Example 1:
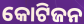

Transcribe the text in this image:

କୋଟିଜନ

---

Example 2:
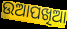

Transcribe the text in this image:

ଉଆପଖିଆ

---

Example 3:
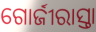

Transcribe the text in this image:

ଗୋର୍ଜୀରାସ୍ତା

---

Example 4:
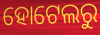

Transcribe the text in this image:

ହୋଟେଲରୁ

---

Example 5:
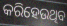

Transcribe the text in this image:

କରିହେଉଥିବ